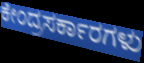
ಕೇಂದ್ರಸರ್ಕಾರಗಳು